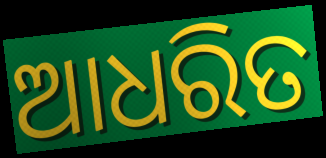
ଆଧରିତ